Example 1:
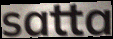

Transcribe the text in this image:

satta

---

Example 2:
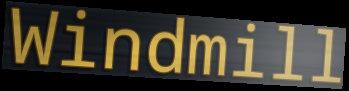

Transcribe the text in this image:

Windmill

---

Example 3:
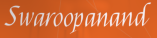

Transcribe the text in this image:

Swaroopanand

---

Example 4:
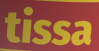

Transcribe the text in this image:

tissa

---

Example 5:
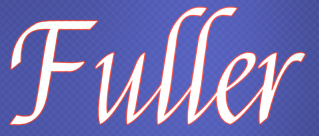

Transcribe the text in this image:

Fuller